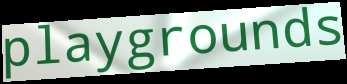
playgrounds